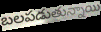
బలపడుతున్నాయి